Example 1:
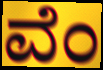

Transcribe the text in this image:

ವೆಂ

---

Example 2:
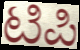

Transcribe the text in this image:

ಟಿಪಿ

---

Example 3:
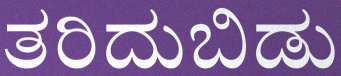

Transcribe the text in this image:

ತರಿದುಬಿಡು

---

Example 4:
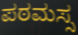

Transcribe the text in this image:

ಪಠಮಸ್ಸ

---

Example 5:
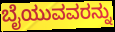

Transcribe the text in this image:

ಬೈಯುವವರನ್ನು